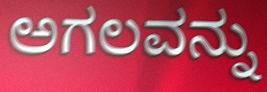
ಅಗಲವನ್ನು